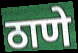
ठाणे